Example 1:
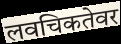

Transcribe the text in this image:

लवचिकतेवर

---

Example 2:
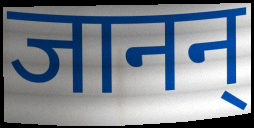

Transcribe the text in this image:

जानन्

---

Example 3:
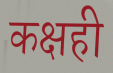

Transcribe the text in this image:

कक्षही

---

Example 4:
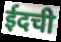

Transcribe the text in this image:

ईदची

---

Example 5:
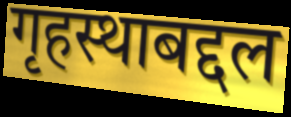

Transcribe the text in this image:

गृहस्थाबद्दल